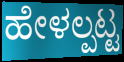
ಹೇಳಲ್ಪಟ್ಟ